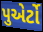
પુએર્ટો